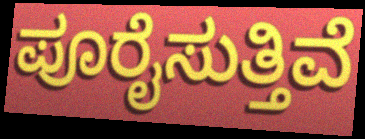
ಪೂರೈಸುತ್ತಿವೆ